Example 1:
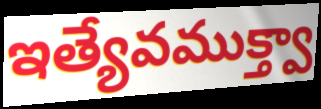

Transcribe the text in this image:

ఇత్యేవముక్త్వా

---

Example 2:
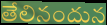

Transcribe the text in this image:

తేలినందున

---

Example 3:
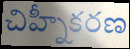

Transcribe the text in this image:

చిహ్నీకరణ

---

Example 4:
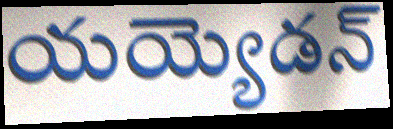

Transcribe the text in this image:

యయ్యెడన్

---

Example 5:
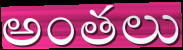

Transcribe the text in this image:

అంతలు